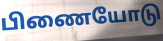
பிணையோடு